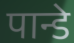
पान्डे